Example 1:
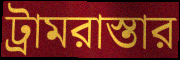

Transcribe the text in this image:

ট্রামরাস্তার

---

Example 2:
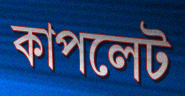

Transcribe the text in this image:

কাপলেট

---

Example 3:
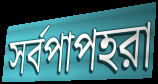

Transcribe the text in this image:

সর্বপাপহরা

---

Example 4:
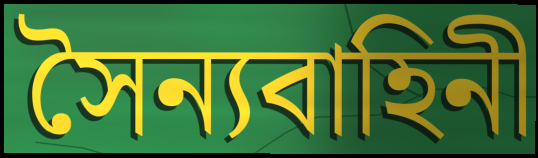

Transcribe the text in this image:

সৈন্যবাহিনী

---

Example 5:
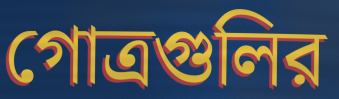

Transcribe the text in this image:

গোত্রগুলির